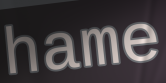
hame